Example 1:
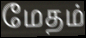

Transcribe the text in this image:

மேதம்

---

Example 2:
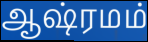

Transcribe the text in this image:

ஆஷ்ரமம்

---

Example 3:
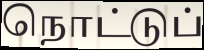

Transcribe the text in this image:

நொட்டுப்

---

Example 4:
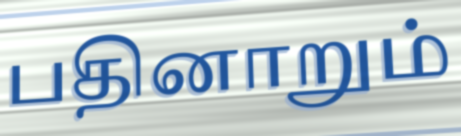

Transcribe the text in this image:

பதினாறும்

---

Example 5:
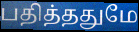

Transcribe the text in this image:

பதித்ததுமே